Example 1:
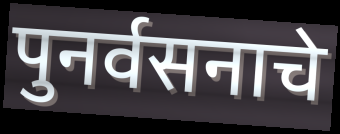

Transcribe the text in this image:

पुनर्वसनाचे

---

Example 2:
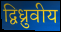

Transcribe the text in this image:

द्विध्रुवीय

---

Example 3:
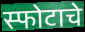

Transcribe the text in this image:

स्फोटाचे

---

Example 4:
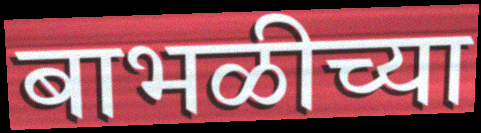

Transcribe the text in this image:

बाभळीच्या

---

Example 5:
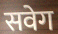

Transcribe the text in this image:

सवेग